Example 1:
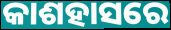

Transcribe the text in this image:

କାଶହାସରେ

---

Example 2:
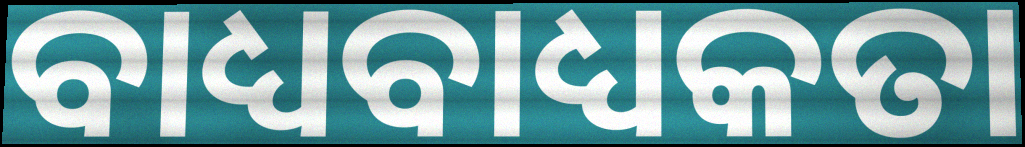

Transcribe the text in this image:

ବାଧ୍ୟବାଧ୍ୟକତା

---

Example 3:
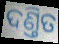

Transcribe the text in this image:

ଦଣ୍ତିତ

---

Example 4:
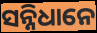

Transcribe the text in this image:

ସନ୍ନିଧାନେ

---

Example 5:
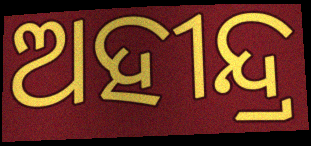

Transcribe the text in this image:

ଅହୀନ୍ଦ୍ର